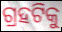
ଗ୍ରହଟିକୁ